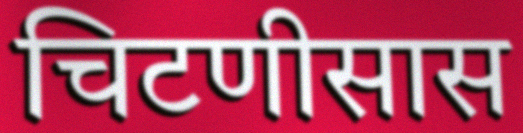
चिटणीसास